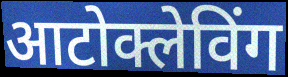
आटोक्लेविंग